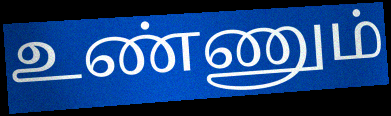
உண்ணும்